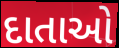
દાતાઓ